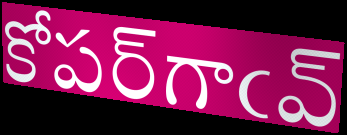
కోపర్‌గాఁవ్